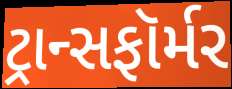
ટ્રાન્સફૉર્મર